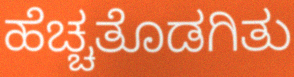
ಹೆಚ್ಚತೊಡಗಿತು